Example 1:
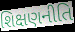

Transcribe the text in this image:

શિક્ષણનીતિ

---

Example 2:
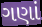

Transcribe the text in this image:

ગણાં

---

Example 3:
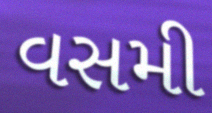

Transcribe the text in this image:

વસમી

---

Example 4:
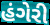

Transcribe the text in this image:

હંગેરી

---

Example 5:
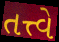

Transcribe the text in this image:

તત્ત્વે